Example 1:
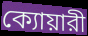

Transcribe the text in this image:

ক্যোয়ারী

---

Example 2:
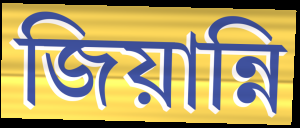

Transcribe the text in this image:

জিয়ান্নি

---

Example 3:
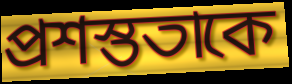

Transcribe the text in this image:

প্রশস্ততাকে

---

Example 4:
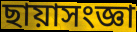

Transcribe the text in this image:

ছায়াসংজ্ঞা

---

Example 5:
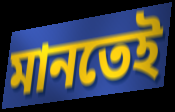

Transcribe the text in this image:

মানতেই